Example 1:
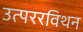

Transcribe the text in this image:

उत्पररविथन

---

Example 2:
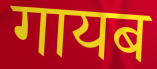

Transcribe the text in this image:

गायब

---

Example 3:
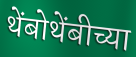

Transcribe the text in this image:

थेंबोथेंबीच्या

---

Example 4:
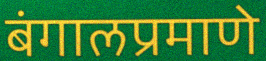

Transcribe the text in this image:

बंगालप्रमाणे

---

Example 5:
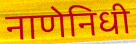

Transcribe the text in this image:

नाणेनिधी